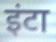
इंटा